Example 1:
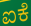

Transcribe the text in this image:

ಐಕೆ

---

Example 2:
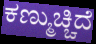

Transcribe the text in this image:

ಕಣ್ಮುಚ್ಚಿದೆ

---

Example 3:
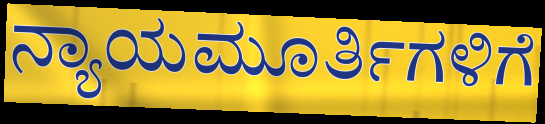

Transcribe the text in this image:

ನ್ಯಾಯಮೂರ್ತಿಗಳಿಗೆ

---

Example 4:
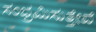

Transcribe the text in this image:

ಸಂಭ್ರಮಿಸುತ್ತೇವೆ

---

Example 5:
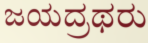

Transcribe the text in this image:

ಜಯದ್ರಥರು